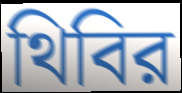
থিবির